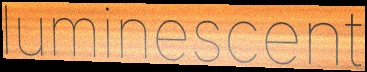
luminescent